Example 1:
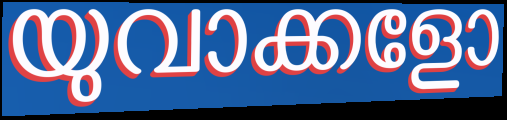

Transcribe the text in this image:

യുവാക്കളോ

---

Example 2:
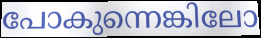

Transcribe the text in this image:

പോകുന്നെങ്കിലോ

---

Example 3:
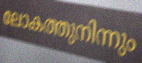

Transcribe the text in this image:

ലോകത്തുനിന്നും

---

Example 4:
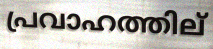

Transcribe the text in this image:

പ്രവാഹത്തില്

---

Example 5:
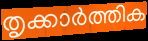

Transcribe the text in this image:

തൃക്കാർത്തിക